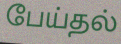
பேய்தல்